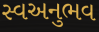
સ્વઅનુભવ